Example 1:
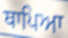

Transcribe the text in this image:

ਥਾਪਿਆ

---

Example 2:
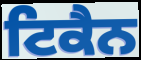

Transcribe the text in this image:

ਟਿਕੈਨ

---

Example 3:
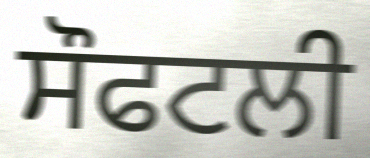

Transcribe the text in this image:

ਸੌਫਟਲੀ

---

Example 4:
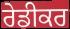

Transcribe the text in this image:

ਰੇਡੀਕਰ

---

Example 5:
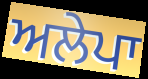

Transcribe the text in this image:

ਅਲੇਪਾ